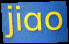
jiao